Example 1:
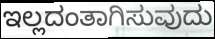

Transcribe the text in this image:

ಇಲ್ಲದಂತಾಗಿಸುವುದು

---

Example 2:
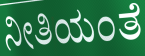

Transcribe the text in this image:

ನೀತಿಯಂತೆ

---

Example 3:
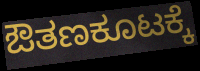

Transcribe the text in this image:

ಔತಣಕೂಟಕ್ಕೆ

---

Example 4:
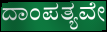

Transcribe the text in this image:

ದಾಂಪತ್ಯವೇ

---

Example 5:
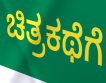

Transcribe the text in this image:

ಚಿತ್ರಕಥೆಗೆ